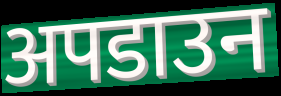
अपडाउन